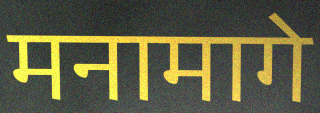
मनामागे